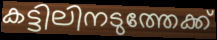
കട്ടിലിനടുത്തേക്ക്